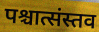
पश्चात्संस्तव